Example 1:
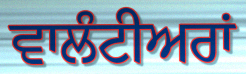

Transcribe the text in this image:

ਵਾਲੰਟੀਅਰਾਂ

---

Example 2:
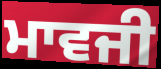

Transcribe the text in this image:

ਮਾਵਜੀ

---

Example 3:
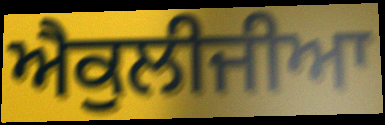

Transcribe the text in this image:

ਐਕੁਲੀਜੀਆ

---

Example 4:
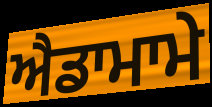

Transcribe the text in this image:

ਐਡਾਮਾਮੇ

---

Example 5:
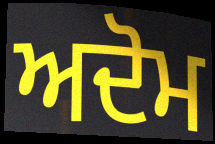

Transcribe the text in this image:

ਅਦੋਮ